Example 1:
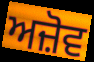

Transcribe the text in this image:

ਅਜ਼ੋਵ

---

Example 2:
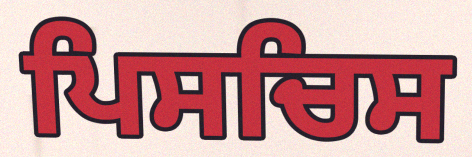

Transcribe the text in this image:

ਪਿਸਚਿਸ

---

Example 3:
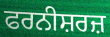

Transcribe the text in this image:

ਫਰਨੀਸ਼ਰਜ਼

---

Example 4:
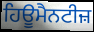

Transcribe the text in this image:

ਹਿਊਮੈਨਟੀਜ਼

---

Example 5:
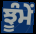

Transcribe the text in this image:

ਝੂੰਮੇਂ